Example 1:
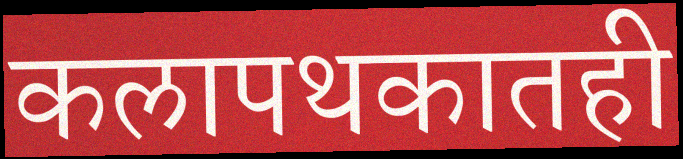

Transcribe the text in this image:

कलापथकातही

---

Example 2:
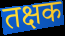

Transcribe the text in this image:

तक्षक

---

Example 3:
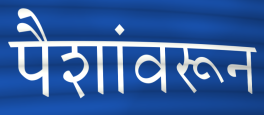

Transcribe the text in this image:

पैशांवरून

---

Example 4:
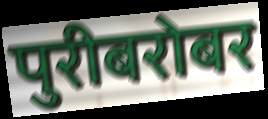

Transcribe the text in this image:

पुरीबरोबर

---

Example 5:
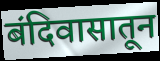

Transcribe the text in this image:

बंदिवासातून